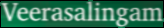
Veerasalingam